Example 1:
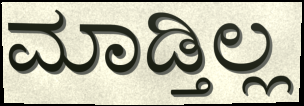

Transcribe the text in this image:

ಮಾಡ್ತಿಲ್ಲ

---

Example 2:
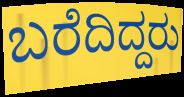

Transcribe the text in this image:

ಬರೆದಿದ್ದರು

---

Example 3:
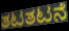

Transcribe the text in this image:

ತಟತಟನೆ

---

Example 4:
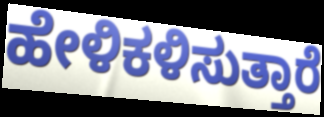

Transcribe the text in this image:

ಹೇಳಿಕಳಿಸುತ್ತಾರೆ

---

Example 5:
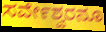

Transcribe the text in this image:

ಸರ್ವೇಶ್ವರನೂ